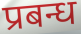
प्रबन्ध